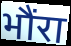
भौंरा